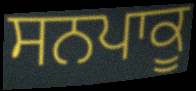
ਸਨਪਾਕੂ